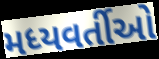
મધ્યવર્તીઓ